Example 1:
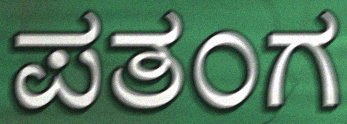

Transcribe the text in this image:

ಪತಂಗ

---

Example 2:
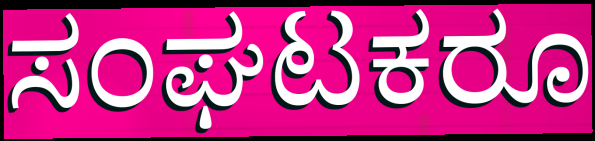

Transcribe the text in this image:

ಸಂಘಟಕರೂ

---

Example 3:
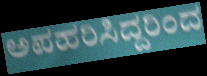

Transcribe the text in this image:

ಅಪಹರಿಸಿದ್ದರಿಂದ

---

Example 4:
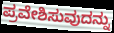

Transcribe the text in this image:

ಪ್ರವೇಶಿಸುವುದನ್ನು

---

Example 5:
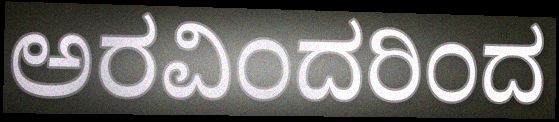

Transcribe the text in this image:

ಅರವಿಂದರಿಂದ